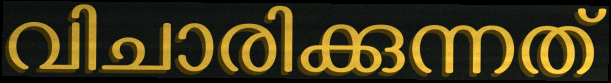
വിചാരിക്കുന്നത്